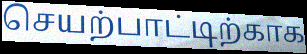
செயற்பாட்டிற்காக